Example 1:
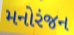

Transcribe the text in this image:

મનોરંજન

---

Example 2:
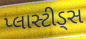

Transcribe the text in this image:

પ્લાસ્ટીડ્સ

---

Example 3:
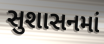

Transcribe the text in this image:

સુશાસનમાં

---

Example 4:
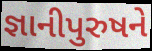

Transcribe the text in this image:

જ્ઞાનીપુરુષને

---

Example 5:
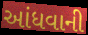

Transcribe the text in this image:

આંધવાની